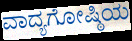
ವಾದ್ಯಗೋಷ್ಠಿಯ